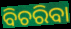
ବିଚରିବା